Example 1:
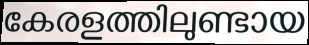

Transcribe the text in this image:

കേരളത്തിലുണ്ടായ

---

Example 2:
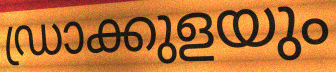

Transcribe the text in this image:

ഡ്രാക്കുളയും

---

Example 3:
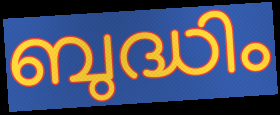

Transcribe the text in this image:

ബുദ്ധിം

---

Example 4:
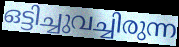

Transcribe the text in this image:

ഒട്ടിച്ചുവച്ചിരുന്ന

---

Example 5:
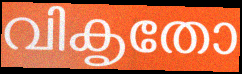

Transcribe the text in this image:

വികൃതോ